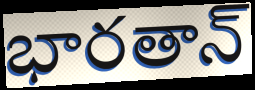
భారతాన్